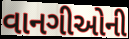
વાનગીઓની